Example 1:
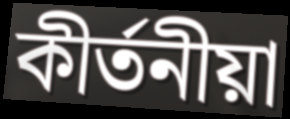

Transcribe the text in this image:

কীর্তনীয়া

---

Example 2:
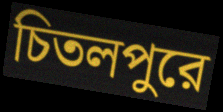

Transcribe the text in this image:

চিতলপুরে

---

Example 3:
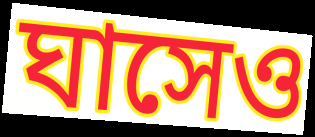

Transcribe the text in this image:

ঘাসেও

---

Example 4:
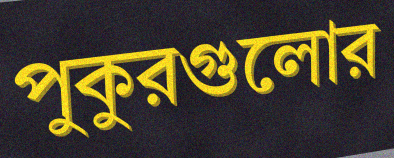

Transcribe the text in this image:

পুকুরগুলোর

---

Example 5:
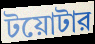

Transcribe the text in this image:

টয়োটার